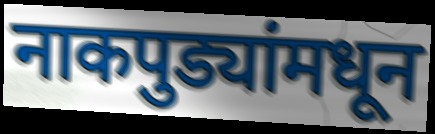
नाकपुड्यांमधून